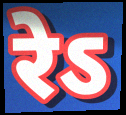
रेऽ